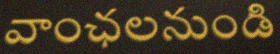
వాంఛలనుండి